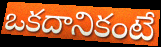
ఒకదానికంటే